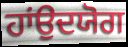
ਹਾਂਉਦਯੋਗ